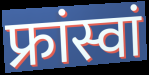
फ्रांस्वां